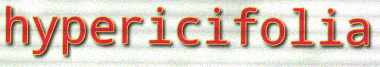
hypericifolia